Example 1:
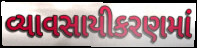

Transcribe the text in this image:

વ્યાવસાયીકરણમાં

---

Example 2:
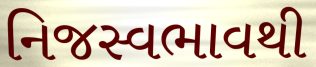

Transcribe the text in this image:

નિજસ્વભાવથી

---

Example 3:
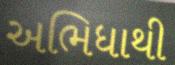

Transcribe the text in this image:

અભિધાથી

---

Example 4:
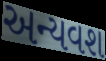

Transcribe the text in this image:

અન્યવશ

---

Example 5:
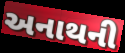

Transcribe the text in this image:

અનાથની